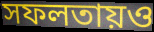
সফলতায়ও